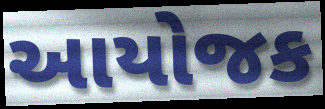
આયોજક